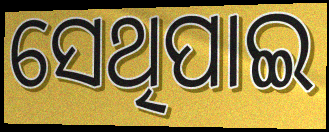
ସେଥିପାଇ